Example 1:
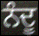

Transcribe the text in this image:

ਨੰਦੂ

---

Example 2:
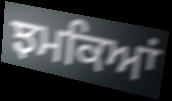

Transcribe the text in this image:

ਝਮਕਿਆਂ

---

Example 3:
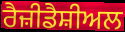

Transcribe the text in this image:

ਰੈਜ਼ੀਡੈਸ਼ੀਅਲ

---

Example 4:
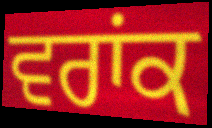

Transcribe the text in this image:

ਵਰਾਂਕ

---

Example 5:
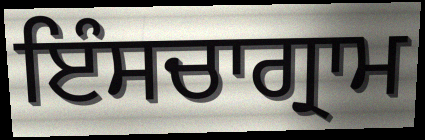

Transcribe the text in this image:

ਇੰਸਚਾਗ੍ਰਾਮ